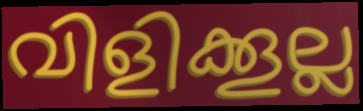
വിളിക്കൂല്ല